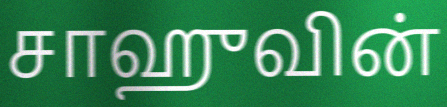
சாஹுவின்